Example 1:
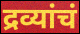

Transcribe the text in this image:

द्रव्यांचं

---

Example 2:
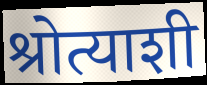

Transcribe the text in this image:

श्रोत्याशी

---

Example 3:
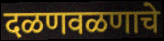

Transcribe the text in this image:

दळणवळणाचे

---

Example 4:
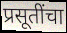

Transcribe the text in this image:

प्रसूतींचा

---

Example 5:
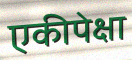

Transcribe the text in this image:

एकीपेक्षा